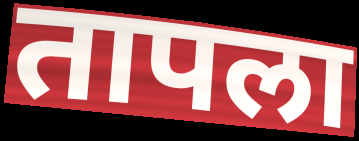
तापला